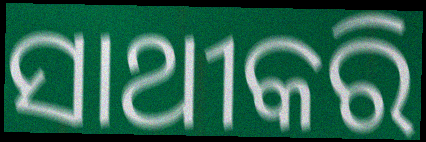
ସାଥୀକରି